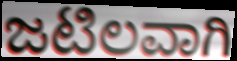
ಜಟಿಲವಾಗಿ